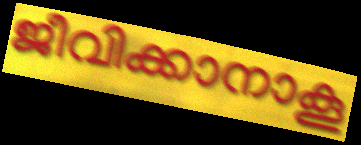
ജീവിക്കാനാകൂ